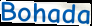
Bohada